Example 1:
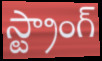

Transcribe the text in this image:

స్ట్రాంగ్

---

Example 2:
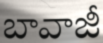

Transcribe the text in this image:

బావాజీ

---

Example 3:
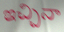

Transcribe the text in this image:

ఇచ్చినా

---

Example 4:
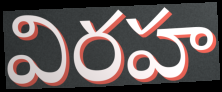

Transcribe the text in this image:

విరహ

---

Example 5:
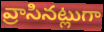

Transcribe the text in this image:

వ్రాసినట్లుగా